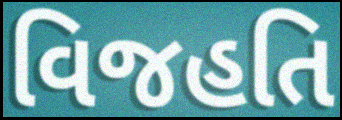
વિજહતિ